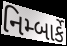
નિમ્બાર્કે